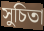
সুচিতা